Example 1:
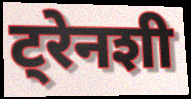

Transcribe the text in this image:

ट्रेनशी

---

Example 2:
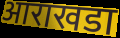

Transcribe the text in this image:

आराखडा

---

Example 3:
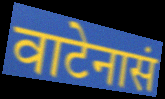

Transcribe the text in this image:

वाटेनासं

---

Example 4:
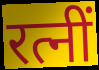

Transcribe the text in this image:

रत्नीं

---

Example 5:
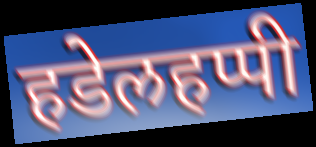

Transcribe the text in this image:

हडेलहप्पी